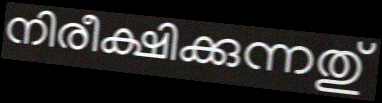
നിരീക്ഷിക്കുന്നതു്